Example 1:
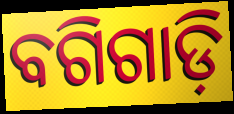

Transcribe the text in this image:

ବଗିଗାଡ଼ି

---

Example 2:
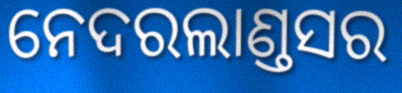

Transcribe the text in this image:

ନେଦରଲାଣ୍ଡସର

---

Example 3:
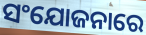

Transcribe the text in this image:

ସଂଯୋଜନାରେ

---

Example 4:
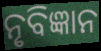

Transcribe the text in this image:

ନୃବିଜ୍ଞାନ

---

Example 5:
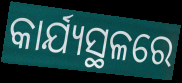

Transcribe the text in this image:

କାର୍ଯ୍ୟସ୍ଥଳରେ